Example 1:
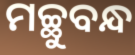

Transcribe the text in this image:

ମଚ୍ଛୁବନ୍ଧ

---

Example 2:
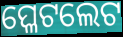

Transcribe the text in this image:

ପ୍ଳେଟଲେଟ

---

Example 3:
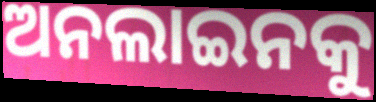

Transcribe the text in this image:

ଅନଲାଇନକୁ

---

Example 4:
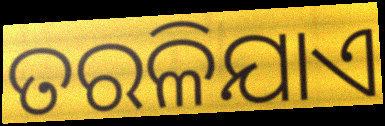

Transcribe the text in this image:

ତରଳିଯାଏ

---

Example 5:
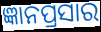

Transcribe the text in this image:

ଜ୍ଞାନପ୍ରସାର